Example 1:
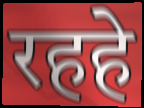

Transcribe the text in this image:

रहहे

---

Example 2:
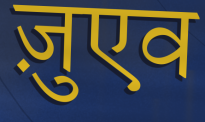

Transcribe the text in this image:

ज़ुएव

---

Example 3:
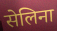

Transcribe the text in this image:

सेलिना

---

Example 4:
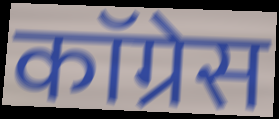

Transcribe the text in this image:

कॉग्रेस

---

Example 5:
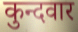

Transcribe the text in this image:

कुन्दवार